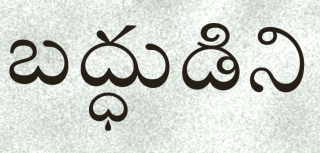
బద్ధుడిని